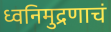
ध्वनिमुद्रणाचं